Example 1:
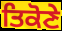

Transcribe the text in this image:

ਤਿਕੋਣੇ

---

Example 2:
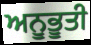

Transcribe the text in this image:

ਅਨੂਭੂਤੀ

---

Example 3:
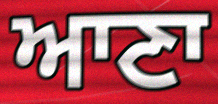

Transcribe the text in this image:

ਆਣਾ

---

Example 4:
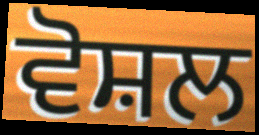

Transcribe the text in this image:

ਵੋਸ਼ਲ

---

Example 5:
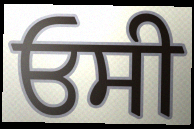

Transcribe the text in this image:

ਓਸੀ